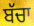
ਬੱਚਾ